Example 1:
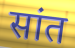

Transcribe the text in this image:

सांत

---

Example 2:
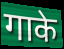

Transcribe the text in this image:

गाके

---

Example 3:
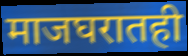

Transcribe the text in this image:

माजघरातही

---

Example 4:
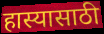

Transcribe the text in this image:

हास्यासाठी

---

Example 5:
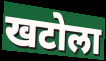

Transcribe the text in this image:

खटोला